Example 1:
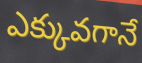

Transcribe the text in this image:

ఎక్కువగానే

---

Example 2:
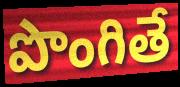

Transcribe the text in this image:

పొంగితే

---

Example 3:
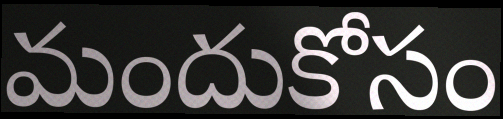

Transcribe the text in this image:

మందుకోసం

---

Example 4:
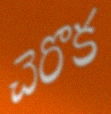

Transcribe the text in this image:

చెరొక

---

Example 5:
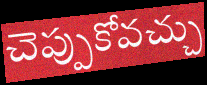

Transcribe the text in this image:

చెప్పుకోవచ్చు